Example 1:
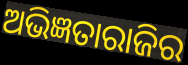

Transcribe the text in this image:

ଅଭିଜ୍ଞତାରାଜିର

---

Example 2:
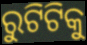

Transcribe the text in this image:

ରୁଟିଟିକୁ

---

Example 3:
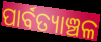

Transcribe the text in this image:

ପାର୍ବତ୍ୟାଞ୍ଚଳ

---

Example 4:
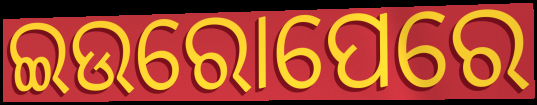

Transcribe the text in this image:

ଇଉରୋପେରେ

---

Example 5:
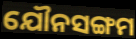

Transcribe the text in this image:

ଯୌନସଙ୍ଗମ